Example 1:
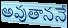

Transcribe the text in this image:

అవుతాననే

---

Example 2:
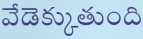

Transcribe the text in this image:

వేడెక్కుతుంది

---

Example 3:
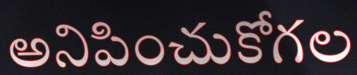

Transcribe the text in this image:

అనిపించుకోగల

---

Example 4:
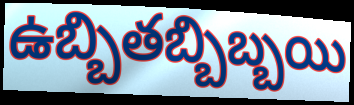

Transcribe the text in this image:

ఉబ్బితబ్బిబ్బయి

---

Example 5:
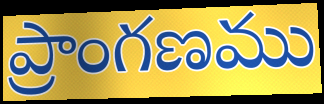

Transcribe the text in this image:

ప్రాంగణము